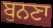
ਬੁਨਣਾ